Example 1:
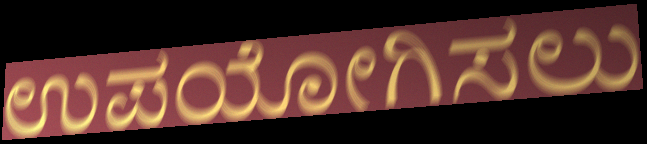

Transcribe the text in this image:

ಉಪಯೋಗಿಸಲು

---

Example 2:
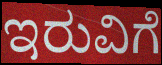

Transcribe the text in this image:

ಇರುವಿಗೆ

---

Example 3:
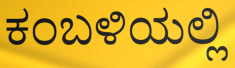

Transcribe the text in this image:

ಕಂಬಳಿಯಲ್ಲಿ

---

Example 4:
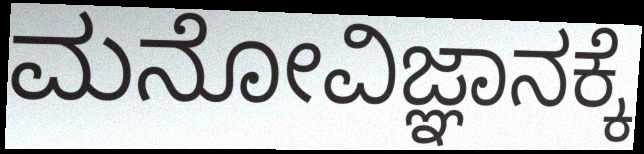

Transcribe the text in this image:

ಮನೋವಿಜ್ಞಾನಕ್ಕೆ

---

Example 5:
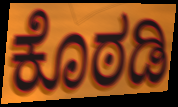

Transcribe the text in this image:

ಕೊಠಡಿ